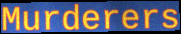
Murderers